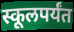
स्कूलपर्यंत